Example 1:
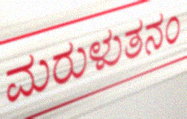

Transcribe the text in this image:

ಮರುಳುತನಂ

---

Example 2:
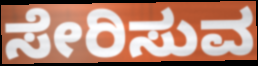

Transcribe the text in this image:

ಸೇರಿಸುವ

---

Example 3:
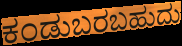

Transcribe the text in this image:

ಕಂಡುಬರಬಹುದು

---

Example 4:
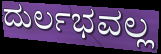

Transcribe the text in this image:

ದುರ್ಲಭವಲ್ಲ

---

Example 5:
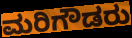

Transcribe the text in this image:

ಮರಿಗೌಡರು